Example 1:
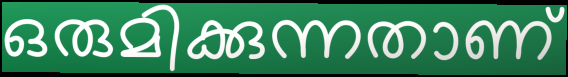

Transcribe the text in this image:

ഒരുമിക്കുന്നതാണ്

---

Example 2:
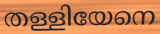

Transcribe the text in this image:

തള്ളിയേനെ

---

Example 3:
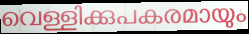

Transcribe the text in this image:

വെള്ളിക്കുപകരമായും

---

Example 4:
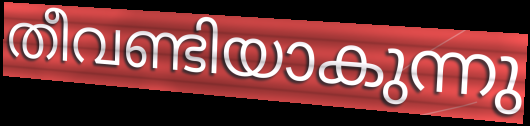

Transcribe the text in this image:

തീവണ്ടിയാകുന്നു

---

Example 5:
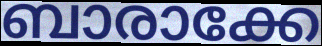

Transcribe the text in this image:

ബാരാക്കേ